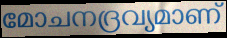
മോചനദ്രവ്യമാണ്